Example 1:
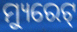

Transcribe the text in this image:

ମ୍ୟୁରେଟ୍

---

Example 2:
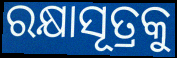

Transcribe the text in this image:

ରକ୍ଷାସୂତ୍ରକୁ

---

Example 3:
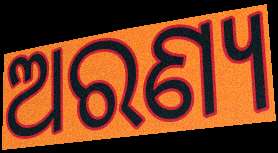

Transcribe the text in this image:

ଅରଣ୍ୟ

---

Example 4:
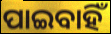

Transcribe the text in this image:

ପାଇବାହିଁ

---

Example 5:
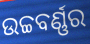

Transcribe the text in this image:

ଉଚ୍ଚବର୍ଣ୍ଣର